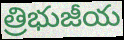
త్రిభుజీయ